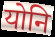
योनि